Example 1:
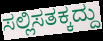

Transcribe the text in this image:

ಸಲ್ಲಿಸತಕ್ಕದ್ದು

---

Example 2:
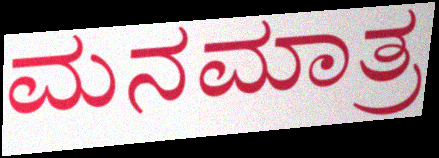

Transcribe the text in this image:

ಮನಮಾತ್ರ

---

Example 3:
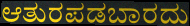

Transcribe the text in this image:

ಆತುರಪಡಬಾರದು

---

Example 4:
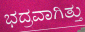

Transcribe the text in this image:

ಭದ್ರವಾಗಿತ್ತು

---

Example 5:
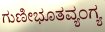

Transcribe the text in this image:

ಗುಣೀಭೂತವ್ಯಂಗ್ಯ